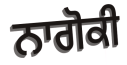
ਨਾਗੋਕੀ